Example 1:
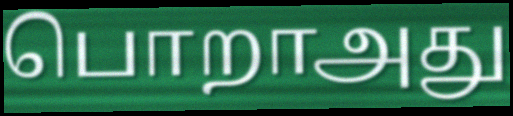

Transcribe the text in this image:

பொறாஅது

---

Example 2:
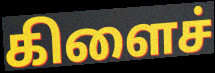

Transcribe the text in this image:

கிளைச்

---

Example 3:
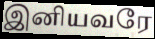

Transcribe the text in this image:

இனியவரே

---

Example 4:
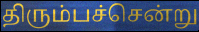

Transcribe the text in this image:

திரும்பச்சென்று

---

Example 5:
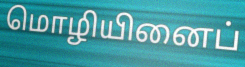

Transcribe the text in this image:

மொழியினைப்